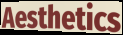
Aesthetics